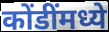
कोंडींमध्ये